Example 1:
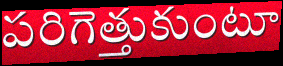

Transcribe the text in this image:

పరిగెత్తుకుంటూ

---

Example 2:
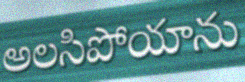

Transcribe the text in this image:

అలసిపోయాను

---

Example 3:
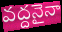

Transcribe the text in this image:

వద్దనైనా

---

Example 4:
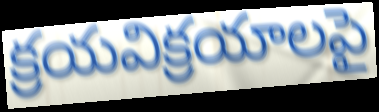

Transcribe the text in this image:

క్రయవిక్రయాలపై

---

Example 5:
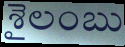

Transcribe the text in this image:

శైలంబు